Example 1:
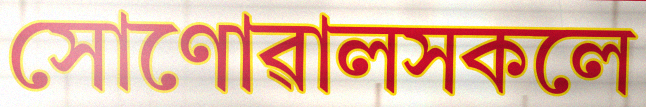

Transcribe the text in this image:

সোণোৱালসকলে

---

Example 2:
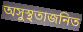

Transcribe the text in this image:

অসুস্থতাজনিত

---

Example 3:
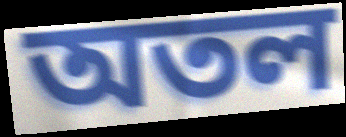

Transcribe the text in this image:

অতল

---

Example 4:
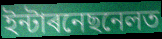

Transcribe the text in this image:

ইন্টাৰনেছনেলত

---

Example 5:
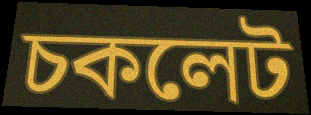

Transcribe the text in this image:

চকলেট